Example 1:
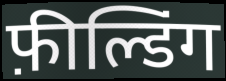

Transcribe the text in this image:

फ़ील्डिंग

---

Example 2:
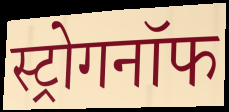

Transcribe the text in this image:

स्ट्रोगनॉफ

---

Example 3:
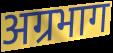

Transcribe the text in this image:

अग्रभाग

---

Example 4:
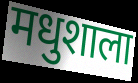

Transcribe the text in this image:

मधुशाला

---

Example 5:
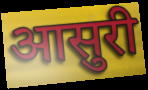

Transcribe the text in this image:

आसुरी